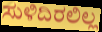
ಸುಳಿದಿರಲಿಲ್ಲ